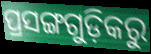
ପ୍ରସଙ୍ଗଗୁଡ଼ିକରୁ